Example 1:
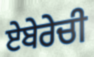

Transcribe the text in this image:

ਏਬੇਰੇਚੀ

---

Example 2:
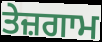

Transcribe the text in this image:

ਤੇਜ਼ਗਾਮ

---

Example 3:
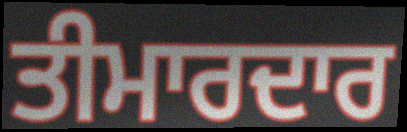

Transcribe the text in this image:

ਤੀਮਾਰਦਾਰ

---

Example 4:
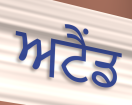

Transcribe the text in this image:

ਅਟੈਂਡ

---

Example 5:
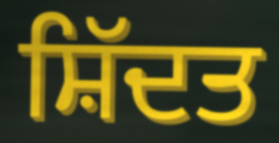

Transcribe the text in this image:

ਸ਼ਿੱਦਤ